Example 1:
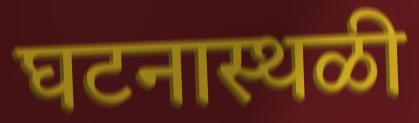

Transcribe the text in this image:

घटनास्थळी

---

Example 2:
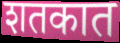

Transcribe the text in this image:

शतकात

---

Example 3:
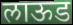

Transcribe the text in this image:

लाऊड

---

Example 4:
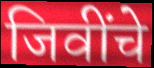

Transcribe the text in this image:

जिवींचे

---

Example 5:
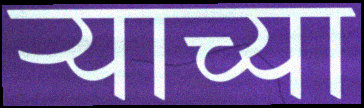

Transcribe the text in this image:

ऱ्याच्या